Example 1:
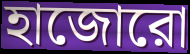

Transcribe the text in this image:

হাজোরো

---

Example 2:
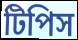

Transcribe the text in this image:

টিপিস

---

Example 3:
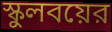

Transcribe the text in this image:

স্কুলবয়ের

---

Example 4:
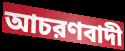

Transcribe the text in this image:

আচরণবাদী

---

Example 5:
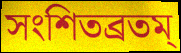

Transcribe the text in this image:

সংশিতব্রতম্